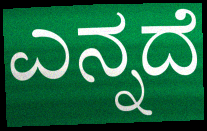
ಎನ್ನದೆ